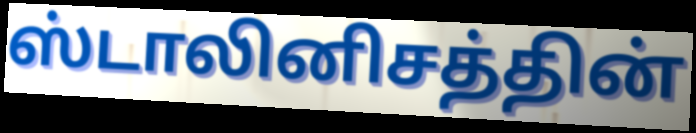
ஸ்டாலினிசத்தின்